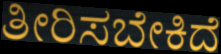
ತೀರಿಸಬೇಕಿದೆ